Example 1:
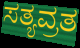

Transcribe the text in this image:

ಸತ್ಯವ್ರತ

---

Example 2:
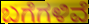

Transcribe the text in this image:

ಬಗೆಗಳಿವೆ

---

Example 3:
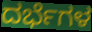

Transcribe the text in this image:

ದರ್ಭೆಗಳ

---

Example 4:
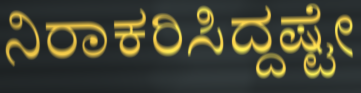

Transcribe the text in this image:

ನಿರಾಕರಿಸಿದ್ದಷ್ಟೇ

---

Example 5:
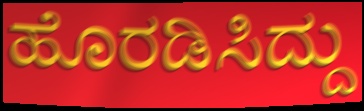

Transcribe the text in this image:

ಹೊರಡಿಸಿದ್ದು